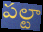
పల్టా